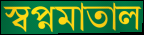
স্বপ্নমাতাল